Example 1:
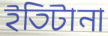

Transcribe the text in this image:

ইতিটানা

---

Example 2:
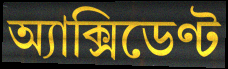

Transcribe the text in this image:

অ্যাক্সিডেণ্ট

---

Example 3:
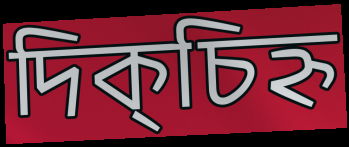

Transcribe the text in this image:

দিক্‌চিহ্ন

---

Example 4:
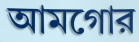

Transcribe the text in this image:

আমগোর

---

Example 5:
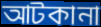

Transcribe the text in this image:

আটকানা